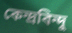
কেন্দ্রবিন্দু